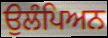
ਉਲੰਪਿਅਨ